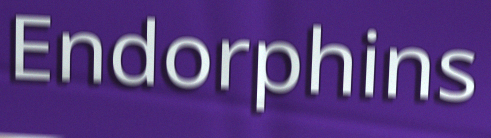
Endorphins